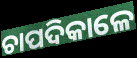
ଚାପଦିକାଳେ